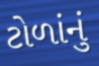
ટોળાંનું